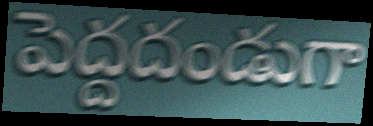
పెద్దదండుగా